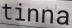
tinna